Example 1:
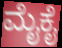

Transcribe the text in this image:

ಮೈಕೈ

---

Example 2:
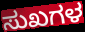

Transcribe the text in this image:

ಸುಖಗಳ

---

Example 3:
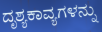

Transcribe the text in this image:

ದೃಶ್ಯಕಾವ್ಯಗಳನ್ನು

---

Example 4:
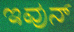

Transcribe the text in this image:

ಇವುನ್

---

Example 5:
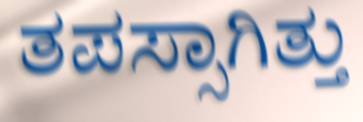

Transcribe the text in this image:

ತಪಸ್ಸಾಗಿತ್ತು